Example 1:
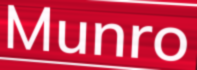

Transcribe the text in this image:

Munro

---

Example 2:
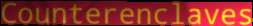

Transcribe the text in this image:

Counterenclaves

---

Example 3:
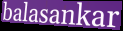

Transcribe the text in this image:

balasankar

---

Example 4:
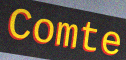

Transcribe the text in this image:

Comte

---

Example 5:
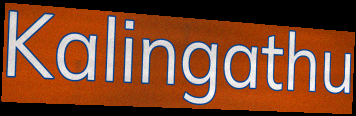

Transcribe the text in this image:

Kalingathu